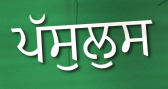
ਪੱਸੁਲੁਸ